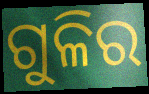
ଗୁଳିର